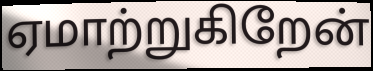
ஏமாற்றுகிறேன்